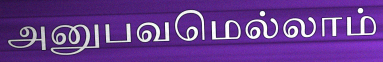
அனுபவமெல்லாம்